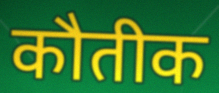
कौतीक